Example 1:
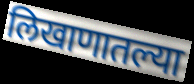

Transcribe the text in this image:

लिखाणातल्या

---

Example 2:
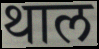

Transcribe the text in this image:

थाल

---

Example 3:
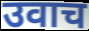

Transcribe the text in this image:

उवाच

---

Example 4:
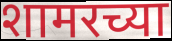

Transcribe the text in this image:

शामरच्या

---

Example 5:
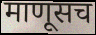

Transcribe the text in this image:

माणूसच